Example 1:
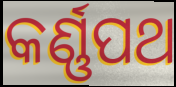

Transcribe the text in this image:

କର୍ଣ୍ଣପଥ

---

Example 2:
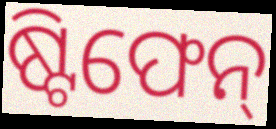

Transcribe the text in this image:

ଷ୍ଟିଫେନ୍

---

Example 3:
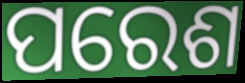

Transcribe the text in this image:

ପରେଶ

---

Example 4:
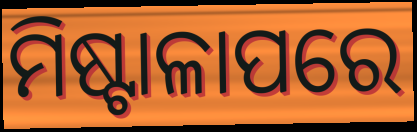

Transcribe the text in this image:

ମିଷ୍ଟାଳାପରେ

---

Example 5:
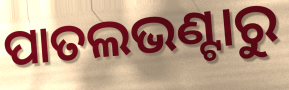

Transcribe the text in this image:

ପାତଲଭଣ୍ଟାରୁ